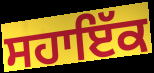
ਸਹਾਇੱਕ